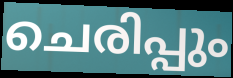
ചെരിപ്പും